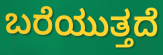
ಬರೆಯುತ್ತದೆ